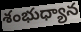
శంభుధ్యాన